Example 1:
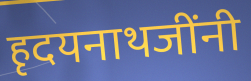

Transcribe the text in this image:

हृदयनाथजींनी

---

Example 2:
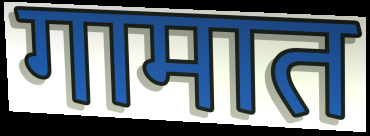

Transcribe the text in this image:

गामात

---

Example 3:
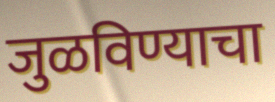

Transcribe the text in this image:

जुळविण्याचा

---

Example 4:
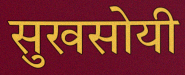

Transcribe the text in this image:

सुखसोयी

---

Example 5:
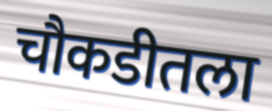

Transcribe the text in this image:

चौकडीतला